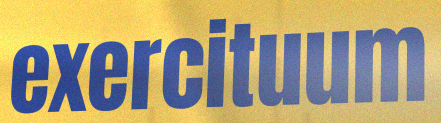
exercituum